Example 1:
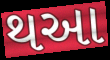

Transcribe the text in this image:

થઆ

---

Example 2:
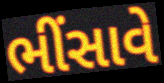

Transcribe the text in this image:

ભીંસાવે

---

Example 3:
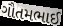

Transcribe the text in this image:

ગૌતમભાઈ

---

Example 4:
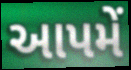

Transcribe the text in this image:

આપમેં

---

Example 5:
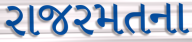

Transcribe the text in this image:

રાજરમતના